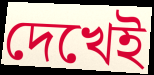
দেখেই